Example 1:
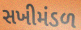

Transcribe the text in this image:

સખીમંડળ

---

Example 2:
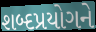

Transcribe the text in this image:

શબ્દપ્રયોગને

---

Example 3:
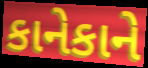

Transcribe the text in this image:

કાનેકાને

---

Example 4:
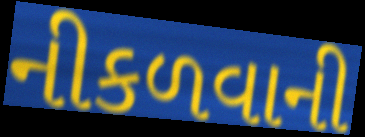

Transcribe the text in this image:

નીકળવાની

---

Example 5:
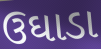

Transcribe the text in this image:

ઉઘાડા